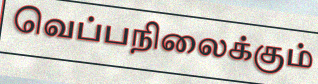
வெப்பநிலைக்கும்